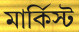
মার্কিস্ট